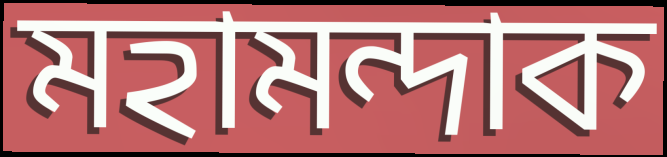
মহামন্দাক